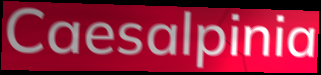
Caesalpinia